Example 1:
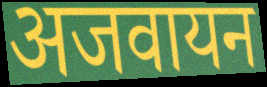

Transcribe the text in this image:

अजवायन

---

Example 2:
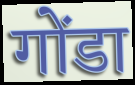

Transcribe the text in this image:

गोंडा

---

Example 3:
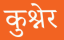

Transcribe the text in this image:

कुश्नेर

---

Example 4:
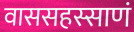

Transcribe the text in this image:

वाससहस्साणं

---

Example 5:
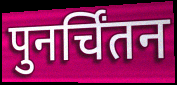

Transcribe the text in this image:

पुनर्चिंतन